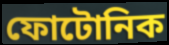
ফোটোনিক